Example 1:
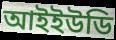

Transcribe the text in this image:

আইইউডি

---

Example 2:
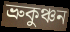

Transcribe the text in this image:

ভ্রুকুঞ্চন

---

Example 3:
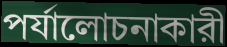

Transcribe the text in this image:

পর্যালোচনাকারী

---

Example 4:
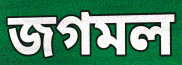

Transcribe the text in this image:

জগমল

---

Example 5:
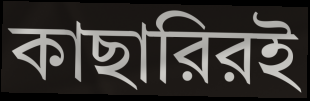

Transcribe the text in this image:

কাছারিরই